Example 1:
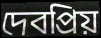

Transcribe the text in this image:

দেবপ্রিয়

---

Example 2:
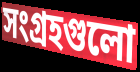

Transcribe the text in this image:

সংগ্রহগুলো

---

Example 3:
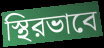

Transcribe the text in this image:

স্থিরভাবে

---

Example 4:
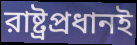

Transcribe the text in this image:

রাষ্ট্রপ্রধানই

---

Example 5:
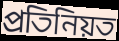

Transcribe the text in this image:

প্রতিনিয়ত